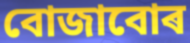
বোজাবোৰ